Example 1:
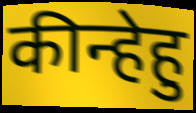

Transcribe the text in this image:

कीन्हेहु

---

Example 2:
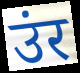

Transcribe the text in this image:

उंर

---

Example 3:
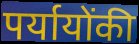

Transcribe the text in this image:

पर्यायोंकी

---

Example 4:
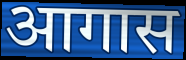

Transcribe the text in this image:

आगास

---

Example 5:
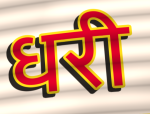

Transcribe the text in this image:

धरी